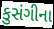
કુસંગીના